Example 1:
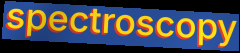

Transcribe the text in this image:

spectroscopy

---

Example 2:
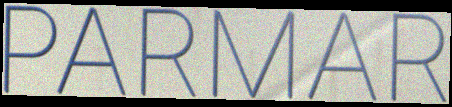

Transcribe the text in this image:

PARMAR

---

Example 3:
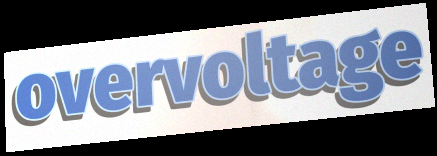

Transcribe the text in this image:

overvoltage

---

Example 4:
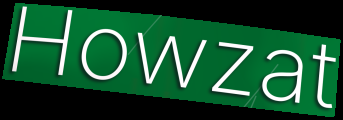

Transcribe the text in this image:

Howzat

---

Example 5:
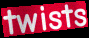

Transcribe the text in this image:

twists